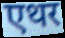
एथर